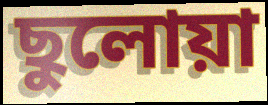
ছুলোয়া